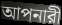
আপনারী